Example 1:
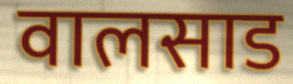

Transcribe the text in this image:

वालसाड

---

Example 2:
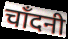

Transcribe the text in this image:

चॉँदनी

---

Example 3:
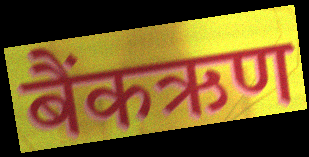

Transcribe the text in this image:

बैंकऋण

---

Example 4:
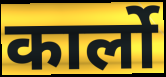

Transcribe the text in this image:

कार्लो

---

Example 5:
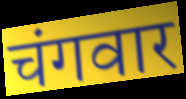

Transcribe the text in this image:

चंगवार